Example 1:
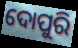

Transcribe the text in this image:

ଦୋପୁରି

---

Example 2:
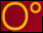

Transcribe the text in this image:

ଠଂ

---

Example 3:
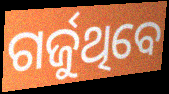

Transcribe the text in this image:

ଗର୍ଜୁଥିବେ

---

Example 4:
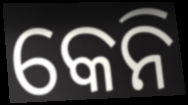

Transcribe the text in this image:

କେନି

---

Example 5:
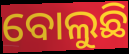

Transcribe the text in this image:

ବୋଲୁଛି